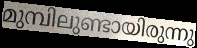
മുമ്പിലുണ്ടായിരുന്നു